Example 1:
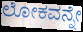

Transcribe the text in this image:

ಲೋಕವನ್ನೇ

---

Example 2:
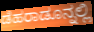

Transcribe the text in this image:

ಡೆಹರಾಡೂನ್ನಲ್ಲಿ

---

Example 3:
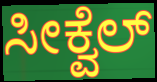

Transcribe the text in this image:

ಸೀಕ್ವೆಲ್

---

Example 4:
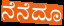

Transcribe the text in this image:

ನೆನೆದೂ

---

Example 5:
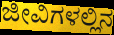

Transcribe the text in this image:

ಜೀವಿಗಳಲ್ಲಿನ